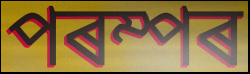
পৰম্পৰ